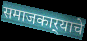
समाजकार्याचे